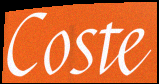
Coste